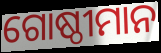
ଗୋଷ୍ଠୀମାନ